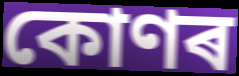
কোণৰ